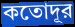
কতোদূর